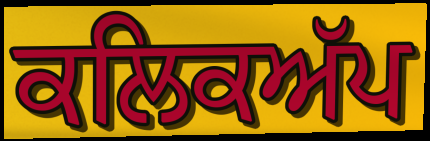
ਕਲਿਕਅੱਪ